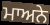
ਮਾਅਨੇ